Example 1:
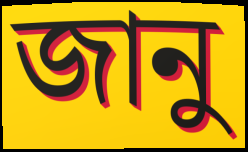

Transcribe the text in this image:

জানু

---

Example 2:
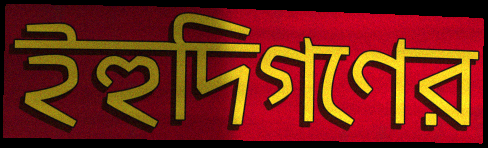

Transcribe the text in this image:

ইহুদিগণের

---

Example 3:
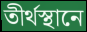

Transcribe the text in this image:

তীর্থস্থানে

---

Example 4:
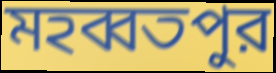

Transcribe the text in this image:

মহব্বতপুর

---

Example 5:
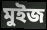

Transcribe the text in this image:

মুইজ